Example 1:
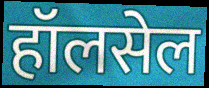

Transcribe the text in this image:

हॉलसेल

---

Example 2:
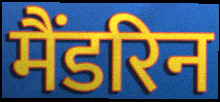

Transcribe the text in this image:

मैंडरिन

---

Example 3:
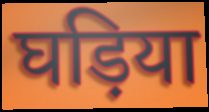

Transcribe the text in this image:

घड़िया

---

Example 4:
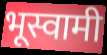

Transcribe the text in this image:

भूस्वामी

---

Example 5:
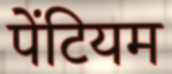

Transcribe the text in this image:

पेंटियम